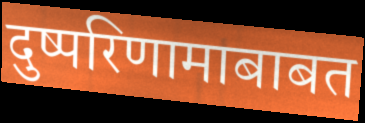
दुष्परिणामाबाबत